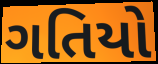
ગતિયો